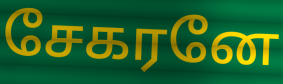
சேகரனே